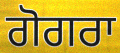
ਗੋਗਰਾ